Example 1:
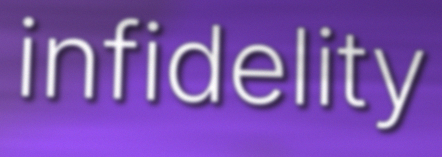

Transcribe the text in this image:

infidelity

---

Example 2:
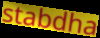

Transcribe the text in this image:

stabdha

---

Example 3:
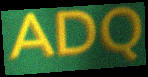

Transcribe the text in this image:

ADQ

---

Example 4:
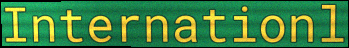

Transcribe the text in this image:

Internationl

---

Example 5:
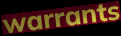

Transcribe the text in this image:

warrants